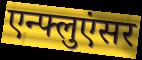
एन्फ्लुएंसर